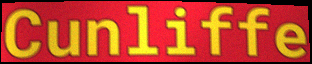
Cunliffe